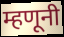
म्हणूनी